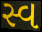
સ્વ